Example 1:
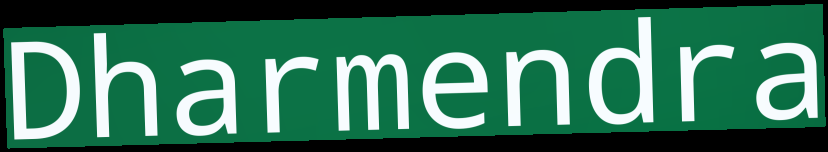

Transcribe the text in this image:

Dharmendra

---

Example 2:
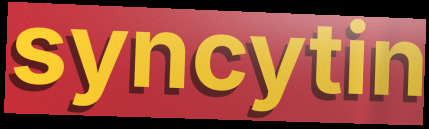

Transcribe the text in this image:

syncytin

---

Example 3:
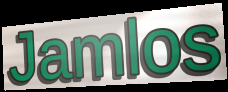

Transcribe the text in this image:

Jamlos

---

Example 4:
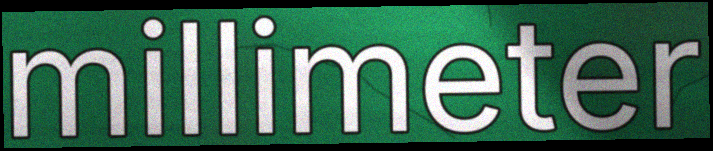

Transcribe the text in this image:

millimeter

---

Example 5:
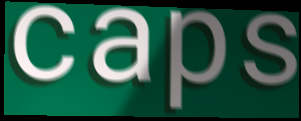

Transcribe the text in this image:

caps